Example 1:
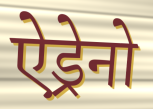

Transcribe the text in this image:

ऐड्रेनो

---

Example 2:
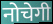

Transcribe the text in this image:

नोचेगी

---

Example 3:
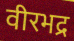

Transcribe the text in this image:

वीरभद्र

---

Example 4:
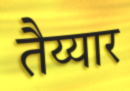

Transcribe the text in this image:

तैय्यार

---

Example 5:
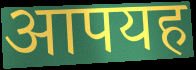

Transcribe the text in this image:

आपयह